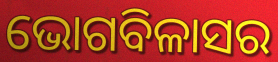
ଭୋଗବିଳାସର